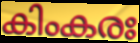
കിംകരഃ